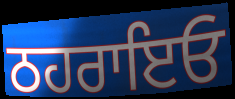
ਠਹਰਾਇਓ